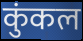
कुंकल